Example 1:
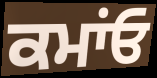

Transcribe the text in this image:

ਕਮਾਂਓ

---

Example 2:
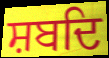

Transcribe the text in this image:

ਸ਼ਬਦਿ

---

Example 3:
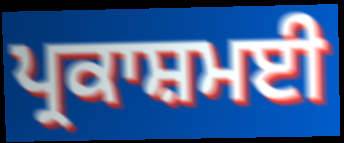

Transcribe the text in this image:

ਪ੍ਰਕਾਸ਼ਮਈ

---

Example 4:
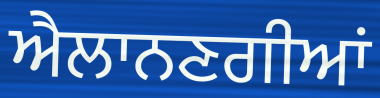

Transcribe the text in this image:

ਐਲਾਨਣਗੀਆਂ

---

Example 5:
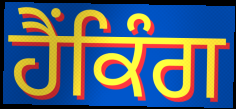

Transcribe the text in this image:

ਹੈਂਕਿੰਗ